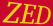
ZED